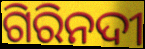
ଗିରିନଦୀ